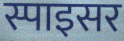
स्पाइसर